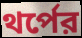
থর্পের